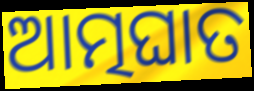
ଆତ୍ମଘାତ